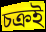
চক্ৰই